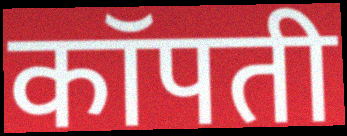
कॉपती